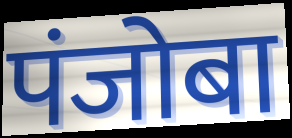
पंजोबा